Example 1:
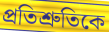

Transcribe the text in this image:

প্রতিশ্রুতিকে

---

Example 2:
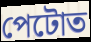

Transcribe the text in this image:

পেটোত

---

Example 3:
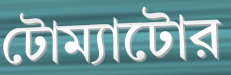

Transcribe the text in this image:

টোম্যাটোর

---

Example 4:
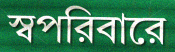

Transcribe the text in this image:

স্বপরিবারে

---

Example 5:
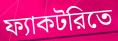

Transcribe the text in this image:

ফ্যাকটরিতে